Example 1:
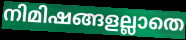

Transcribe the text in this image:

നിമിഷങ്ങളല്ലാതെ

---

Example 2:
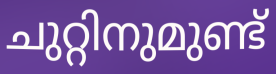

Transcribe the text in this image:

ചുറ്റിനുമുണ്ട്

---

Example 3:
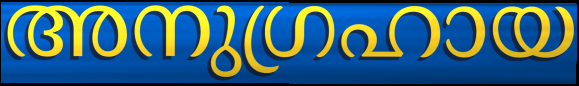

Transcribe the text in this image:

അനുഗ്രഹായ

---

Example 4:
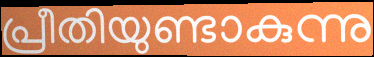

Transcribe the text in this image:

പ്രീതിയുണ്ടാകുന്നു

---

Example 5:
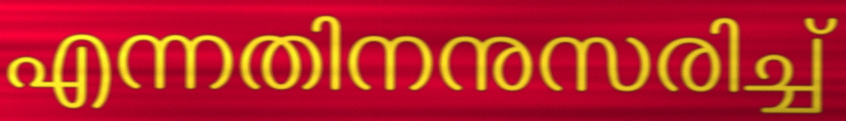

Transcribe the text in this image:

എന്നതിനനുസരിച്ച്